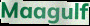
Maagulf